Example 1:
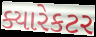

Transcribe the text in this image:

ક્યારેકટર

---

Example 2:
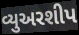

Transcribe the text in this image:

વ્યુઅરશીપ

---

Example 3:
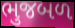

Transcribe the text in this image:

ભુજબળ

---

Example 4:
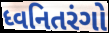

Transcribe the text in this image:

ધ્વનિતરંગો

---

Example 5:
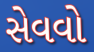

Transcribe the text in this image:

સેવવો